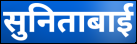
सुनिताबाई